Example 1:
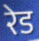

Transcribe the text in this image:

रेड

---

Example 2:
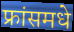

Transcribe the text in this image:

फ्रांसमधे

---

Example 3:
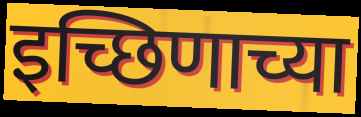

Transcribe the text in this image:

इच्छिणाच्या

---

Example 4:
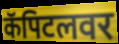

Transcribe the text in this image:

कॅपिटलवर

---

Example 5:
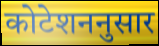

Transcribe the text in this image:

कोटेशननुसार